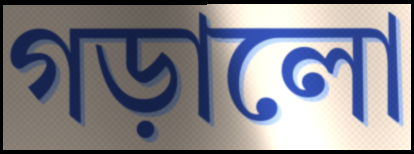
গড়ালো